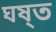
ঘষ্ত